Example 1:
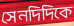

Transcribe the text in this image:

সেনদিদিকে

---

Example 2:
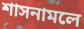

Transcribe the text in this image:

শাসনামলে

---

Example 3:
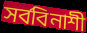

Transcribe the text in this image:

সর্ববিনাশী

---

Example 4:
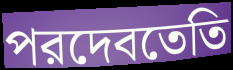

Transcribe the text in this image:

পরদেবতেতি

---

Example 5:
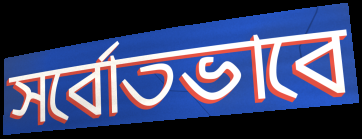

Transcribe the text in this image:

সর্বোতভাবে